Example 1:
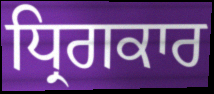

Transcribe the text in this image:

ਧ੍ਰਿਗਕਾਰ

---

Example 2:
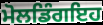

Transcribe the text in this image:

ਮੋਲਡਿੰਗਇਹ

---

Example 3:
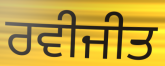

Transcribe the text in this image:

ਰਵੀਜੀਤ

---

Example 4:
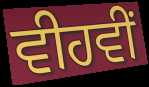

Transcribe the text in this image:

ਵੀਹਵੀਂ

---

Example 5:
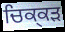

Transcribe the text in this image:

ਚਿਕ੍ਕੜ